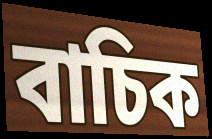
বাচিক